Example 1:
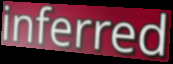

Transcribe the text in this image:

inferred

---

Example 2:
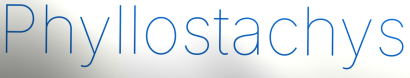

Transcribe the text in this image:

Phyllostachys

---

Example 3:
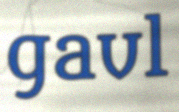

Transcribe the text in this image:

gaul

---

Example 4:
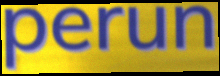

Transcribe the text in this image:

perun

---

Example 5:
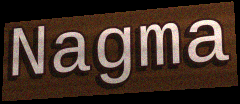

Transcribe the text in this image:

Nagma